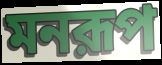
মনরূপ